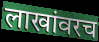
लाखांवरच